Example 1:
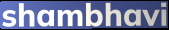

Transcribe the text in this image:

shambhavi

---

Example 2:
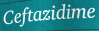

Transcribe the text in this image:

Ceftazidime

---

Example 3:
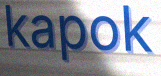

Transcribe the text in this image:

kapok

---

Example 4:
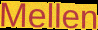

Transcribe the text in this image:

Mellen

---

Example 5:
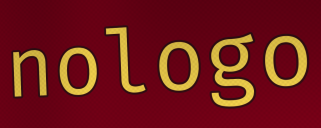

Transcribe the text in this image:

nologo